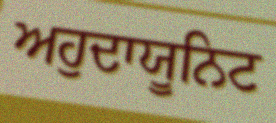
ਅਹੁਦਾਯੂਨਿਟ